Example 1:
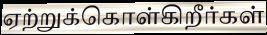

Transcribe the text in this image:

ஏற்றுக்கொள்கிறீர்கள்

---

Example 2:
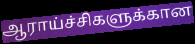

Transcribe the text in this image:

ஆராய்ச்சிகளுக்கான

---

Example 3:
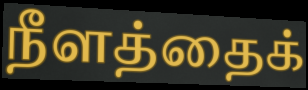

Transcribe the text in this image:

நீளத்தைக்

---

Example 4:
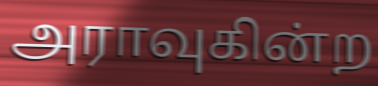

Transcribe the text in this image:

அராவுகின்ற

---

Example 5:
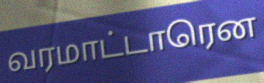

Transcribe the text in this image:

வரமாட்டாரென